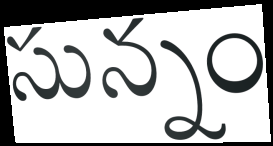
సున్నం